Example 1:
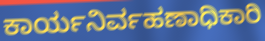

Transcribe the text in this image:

ಕಾರ್ಯನಿರ್ವಹಣಾಧಿಕಾರಿ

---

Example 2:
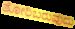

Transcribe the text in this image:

ತೋರಿಬರುವುದು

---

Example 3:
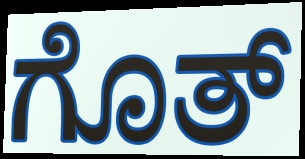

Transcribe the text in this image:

ಗೊತ್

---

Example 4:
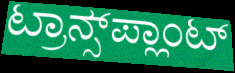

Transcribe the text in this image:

ಟ್ರಾನ್ಸ್‌ಪ್ಲಾಂಟ್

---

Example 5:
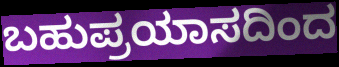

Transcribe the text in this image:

ಬಹುಪ್ರಯಾಸದಿಂದ